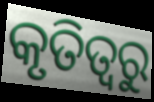
କୃତିତ୍ଵରୁ